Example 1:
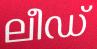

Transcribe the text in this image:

ലീഡ്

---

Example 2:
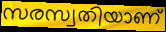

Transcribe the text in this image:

സരസ്വതിയാണ്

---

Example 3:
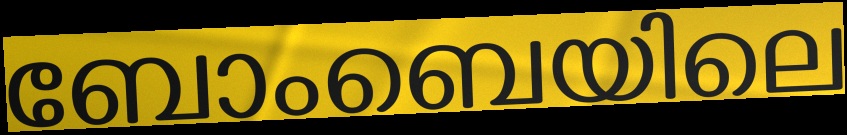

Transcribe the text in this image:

ബോംബെയിലെ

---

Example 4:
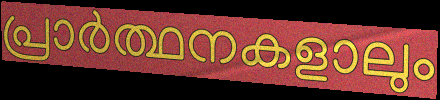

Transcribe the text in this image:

പ്രാർത്ഥനകളാലും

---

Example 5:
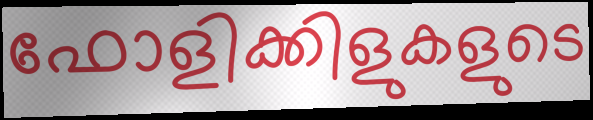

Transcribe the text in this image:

ഫോളിക്കിളുകളുടെ